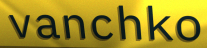
vanchko